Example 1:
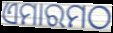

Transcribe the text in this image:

ଏମାରମଠ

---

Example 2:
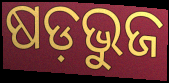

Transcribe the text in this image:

ଷଡ଼ଭୁଜ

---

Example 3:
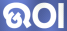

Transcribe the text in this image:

ଉଠା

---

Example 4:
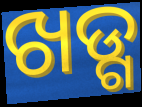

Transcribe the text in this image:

ଖଡ୍ଗ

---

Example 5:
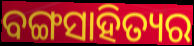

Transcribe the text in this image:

ବଙ୍ଗସାହିତ୍ୟର